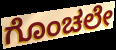
ಗೊಂಚಲೇ